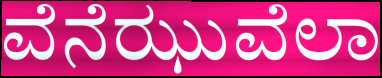
ವೆನೆಝುವೆಲಾ